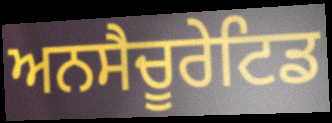
ਅਨਸੈਚੂਰੇਟਿਡ